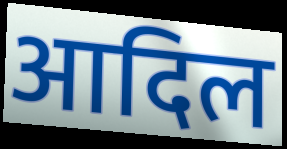
आदिल